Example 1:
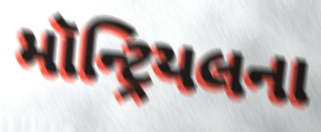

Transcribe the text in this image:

મૉન્ટ્રિયલના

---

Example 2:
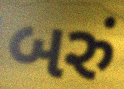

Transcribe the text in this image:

બરું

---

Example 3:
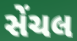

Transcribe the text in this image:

સેંચલ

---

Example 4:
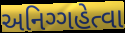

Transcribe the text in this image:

અનિગ્ગહેત્વા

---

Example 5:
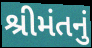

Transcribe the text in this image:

શ્રીમંતનું